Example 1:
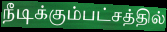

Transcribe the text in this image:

நீடிக்கும்பட்சத்தில்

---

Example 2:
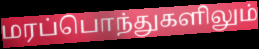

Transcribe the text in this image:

மரப்பொந்துகளிலும்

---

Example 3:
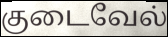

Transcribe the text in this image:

குடைவேல்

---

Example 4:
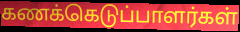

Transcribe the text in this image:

கணக்கெடுப்பாளர்கள்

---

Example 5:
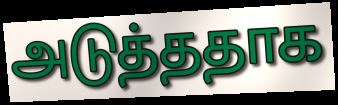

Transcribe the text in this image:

அடுத்ததாக